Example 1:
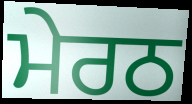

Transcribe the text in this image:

ਮੇਰਠ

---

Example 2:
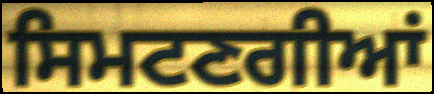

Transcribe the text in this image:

ਸਿਮਟਣਗੀਆਂ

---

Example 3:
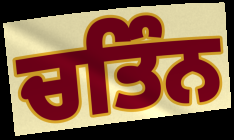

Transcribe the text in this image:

ਚਤਿੰਨ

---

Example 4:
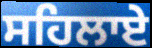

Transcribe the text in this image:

ਸਹਿਲਾਏ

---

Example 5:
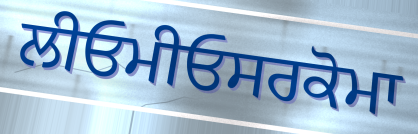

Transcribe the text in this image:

ਲੀਓਮੀਓਸਰਕੋਮਾ